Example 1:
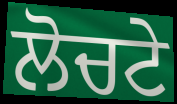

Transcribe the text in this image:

ਲੋਚਟੇ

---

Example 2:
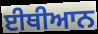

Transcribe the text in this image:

ਈਥੀਆਨ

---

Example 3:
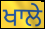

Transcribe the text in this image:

ਖਾਲੇ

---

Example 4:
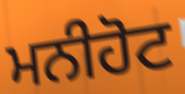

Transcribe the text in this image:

ਮਨੀਹੋਟ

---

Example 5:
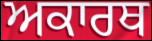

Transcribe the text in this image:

ਅਕਾਰਥ